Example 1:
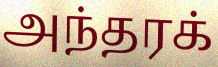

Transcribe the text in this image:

அந்தரக்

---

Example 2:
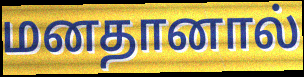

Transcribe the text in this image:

மனதானால்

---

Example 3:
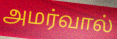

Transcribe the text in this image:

அமர்வால்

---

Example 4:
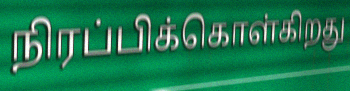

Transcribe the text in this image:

நிரப்பிக்கொள்கிறது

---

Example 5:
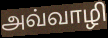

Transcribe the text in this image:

அவ்வாழி